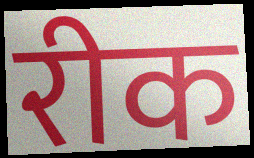
रीक